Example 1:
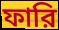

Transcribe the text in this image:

ফারি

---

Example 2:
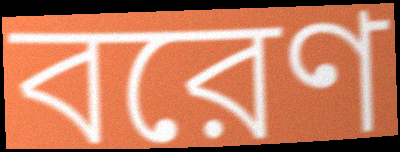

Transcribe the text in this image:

বরেণ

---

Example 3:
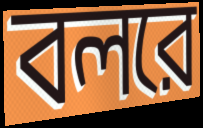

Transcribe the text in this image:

বলরে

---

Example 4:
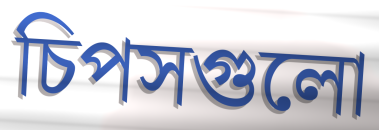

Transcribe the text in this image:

চিপসগুলো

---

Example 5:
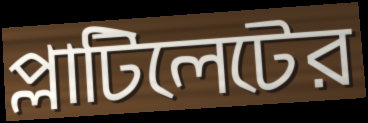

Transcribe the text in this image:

প্লাটিলেটের